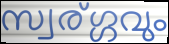
സ്വര്ഗ്ഗവും